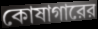
কোষাগারের